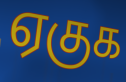
ஏகுக